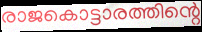
രാജകൊട്ടാരത്തിന്റെ